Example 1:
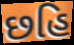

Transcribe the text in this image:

છહિ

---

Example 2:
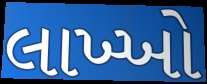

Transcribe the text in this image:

લાખ્ખો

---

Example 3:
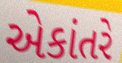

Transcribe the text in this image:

એકાંતરે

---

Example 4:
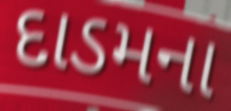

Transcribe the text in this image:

દાડમના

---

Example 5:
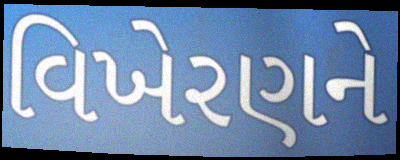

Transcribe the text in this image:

વિખેરણને